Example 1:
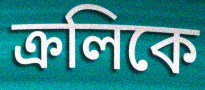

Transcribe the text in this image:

ক্রলিকে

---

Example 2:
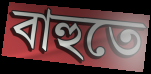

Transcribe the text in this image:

বাহুতে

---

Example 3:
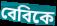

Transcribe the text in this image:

বেবিকে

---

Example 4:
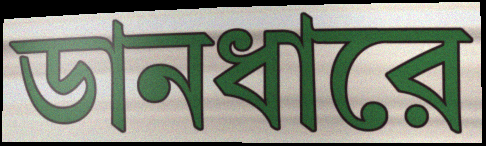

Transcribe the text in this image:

ডানধারে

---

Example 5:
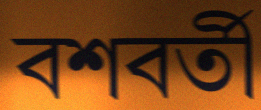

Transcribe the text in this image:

বশবর্তী